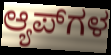
ಆ್ಯಪ್‌ಗಳ